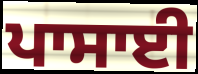
ਪਾਸਾਈ